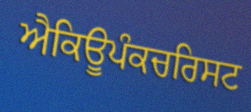
ਐਕਿਊਪੰਕਚਰਿਸਟ